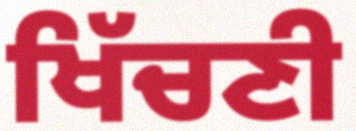
ਖਿੱਚਣੀ